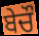
ਬੇਚੌ